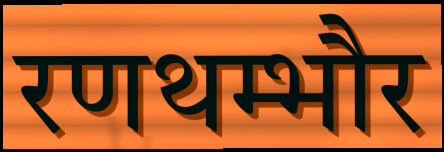
रणथम्भौर